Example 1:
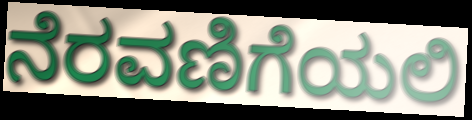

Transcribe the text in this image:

ನೆರವಣಿಗೆಯಲಿ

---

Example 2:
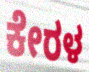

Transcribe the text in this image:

ಕೇರಳ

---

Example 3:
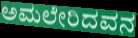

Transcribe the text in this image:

ಅಮಲೇರಿದವನ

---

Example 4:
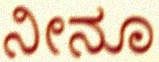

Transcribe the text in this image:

ನೀನೂ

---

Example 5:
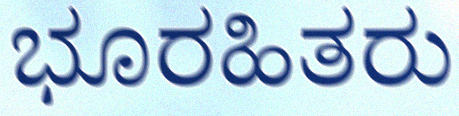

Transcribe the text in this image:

ಭೂರಹಿತರು